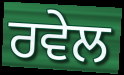
ਰਵੇਲ